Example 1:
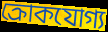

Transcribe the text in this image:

ক্রোকযোগ্য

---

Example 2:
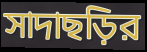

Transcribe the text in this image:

সাদাছড়ির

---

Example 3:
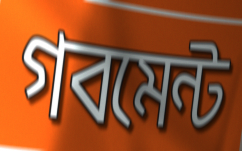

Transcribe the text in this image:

গবমেন্ট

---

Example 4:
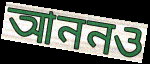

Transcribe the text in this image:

আননও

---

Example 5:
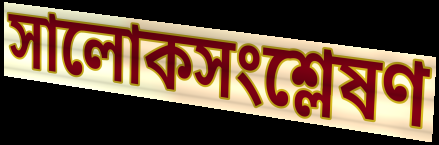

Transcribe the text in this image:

সালোকসংশ্লেষণ